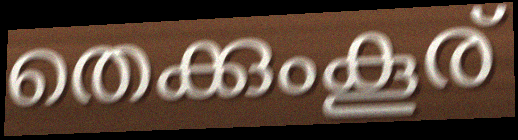
തെക്കുംകൂര്